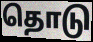
தொடு